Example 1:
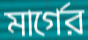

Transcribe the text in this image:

মার্গের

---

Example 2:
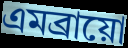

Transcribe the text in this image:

এমব্রায়ো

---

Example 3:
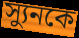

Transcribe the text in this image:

স্যুনকে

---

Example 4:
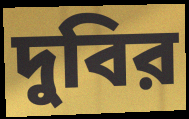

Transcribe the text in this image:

দুবির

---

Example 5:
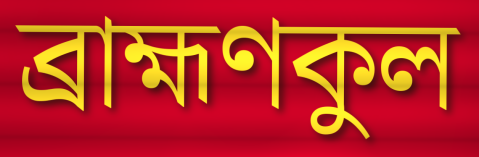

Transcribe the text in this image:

ব্রাহ্মণকুল